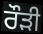
ਰੌੜੀ